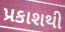
પ્રકાશથી